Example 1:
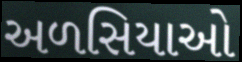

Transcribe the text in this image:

અળસિયાઓ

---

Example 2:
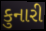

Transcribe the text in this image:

કુનારી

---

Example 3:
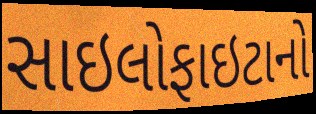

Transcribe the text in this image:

સાઇલોફાઇટાનો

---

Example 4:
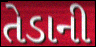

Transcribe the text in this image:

તેડાની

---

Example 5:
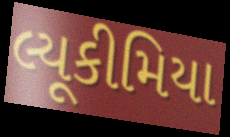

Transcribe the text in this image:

લ્યૂકીમિયા